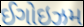
ઈગોઇઝમ